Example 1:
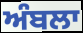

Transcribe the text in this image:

ਅੰਬਲਾ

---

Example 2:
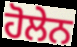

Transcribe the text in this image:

ਹੋਲੇਨ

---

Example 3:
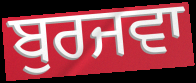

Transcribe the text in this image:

ਬੁਰਜਵਾ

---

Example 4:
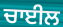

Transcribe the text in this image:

ਚਾਈਲ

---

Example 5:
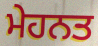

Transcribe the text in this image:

ਮੇਹਨਤ